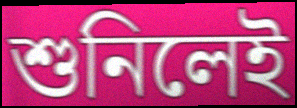
শুনিলেই